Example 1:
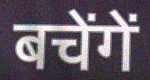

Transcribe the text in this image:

बचेंगें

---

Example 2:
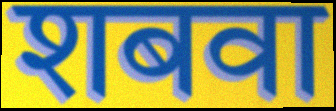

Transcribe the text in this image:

शबवा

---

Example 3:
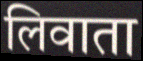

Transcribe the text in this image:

लिवाता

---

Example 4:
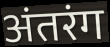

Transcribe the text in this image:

अंतरंग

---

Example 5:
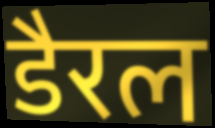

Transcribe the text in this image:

डैरल